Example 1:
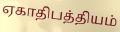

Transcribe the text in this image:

ஏகாதிபத்தியம்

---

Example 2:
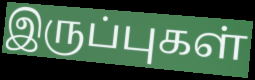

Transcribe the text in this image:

இருப்புகள்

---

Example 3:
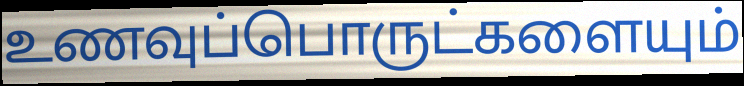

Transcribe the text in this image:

உணவுப்பொருட்களையும்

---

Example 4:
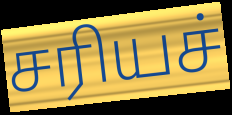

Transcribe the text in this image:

சரியச்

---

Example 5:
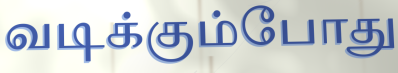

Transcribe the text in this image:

வடிக்கும்போது